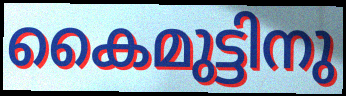
കൈമുട്ടിനു